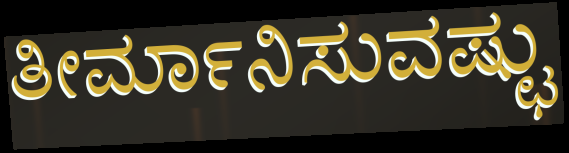
ತೀರ್ಮಾನಿಸುವಷ್ಟು